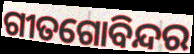
ଗୀତଗୋବିନ୍ଦର